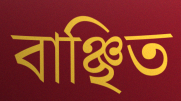
বাঞ্ছিত